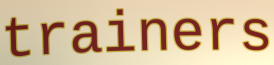
trainers